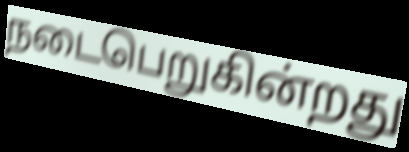
நடைபெறுகின்றது